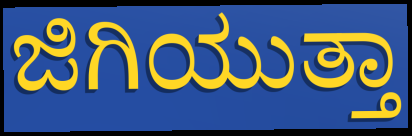
ಜಿಗಿಯುತ್ತಾ